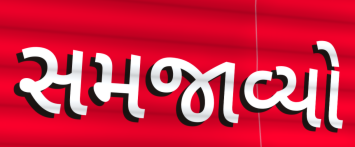
સમજાવ્યો